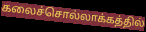
கலைச்சொல்லாக்கத்தில்